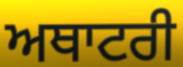
ਅਥਾਟਰੀ